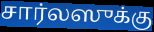
சார்லஸுக்கு